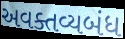
અવક્તવ્યબંધ